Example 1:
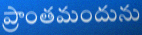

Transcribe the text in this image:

ప్రాంతమందును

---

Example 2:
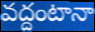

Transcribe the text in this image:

వద్దంటానా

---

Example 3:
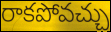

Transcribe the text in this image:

రాకపోవచ్చు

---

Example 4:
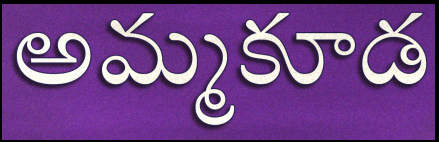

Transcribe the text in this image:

అమ్మకూడ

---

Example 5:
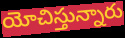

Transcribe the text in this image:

యోచిస్తున్నారు